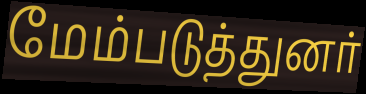
மேம்படுத்துனர்